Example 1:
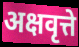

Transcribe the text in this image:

अक्षवृत्ते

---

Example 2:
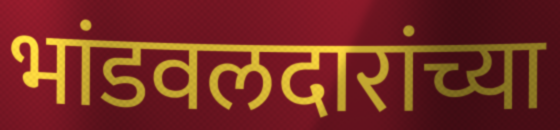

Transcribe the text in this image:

भांडवलदारांच्या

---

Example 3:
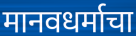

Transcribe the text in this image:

मानवधर्माचा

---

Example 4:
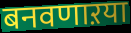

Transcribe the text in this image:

बनवणाऱया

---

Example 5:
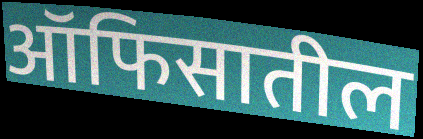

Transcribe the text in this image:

ऑफिसातील